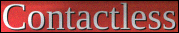
Contactless